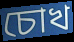
চোখ